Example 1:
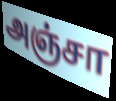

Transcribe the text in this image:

அஞ்சா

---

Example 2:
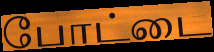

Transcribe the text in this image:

போட்டை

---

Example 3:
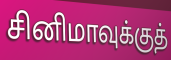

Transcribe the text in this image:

சினிமாவுக்குத்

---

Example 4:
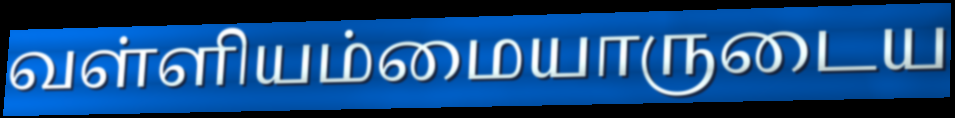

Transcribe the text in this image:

வள்ளியம்மையாருடைய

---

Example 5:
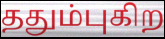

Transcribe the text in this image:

ததும்புகிற